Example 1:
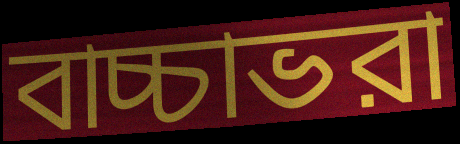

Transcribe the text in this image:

বাচ্চাভরা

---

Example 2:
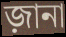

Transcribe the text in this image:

জ়ানা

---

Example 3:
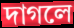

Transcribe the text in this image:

দাগলে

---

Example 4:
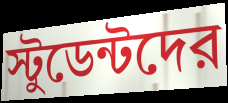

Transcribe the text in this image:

স্টুডেন্টদের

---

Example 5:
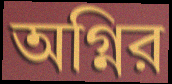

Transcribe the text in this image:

অগ্নির